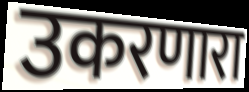
उकरणारा